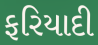
ફરિયાદી